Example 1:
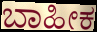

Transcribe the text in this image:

ಬಾಹೀಕ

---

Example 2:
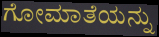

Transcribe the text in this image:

ಗೋಮಾತೆಯನ್ನು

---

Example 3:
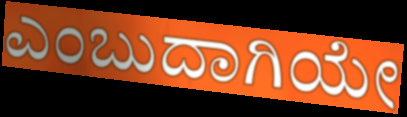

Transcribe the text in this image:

ಎಂಬುದಾಗಿಯೇ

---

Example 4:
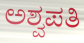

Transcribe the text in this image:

ಅಶ್ವಪತಿ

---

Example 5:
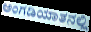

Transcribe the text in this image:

ಅಂಗಡಿಯಾತನಲ್ಲಿ